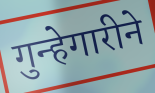
गुन्हेगारीने